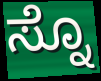
ಸ್ನೊ